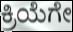
ಕ್ರಿಯೆಗೇ